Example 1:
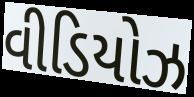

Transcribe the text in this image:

વીડિયોઝ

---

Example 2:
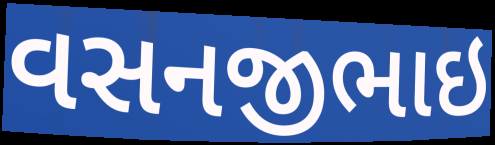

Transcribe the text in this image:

વસનજીભાઇ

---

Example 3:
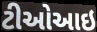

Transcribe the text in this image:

ટીઓઆઇ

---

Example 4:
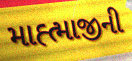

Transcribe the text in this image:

માહ્ત્માજીની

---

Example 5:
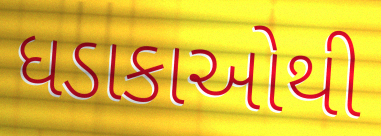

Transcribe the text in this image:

ધડાકાઓથી